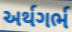
અર્થગર્ભ